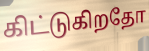
கிட்டுகிறதோ